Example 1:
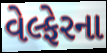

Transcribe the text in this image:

વેલ્ફેરના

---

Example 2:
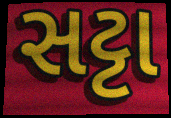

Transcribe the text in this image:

સટ્ટા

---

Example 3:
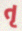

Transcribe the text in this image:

તૃ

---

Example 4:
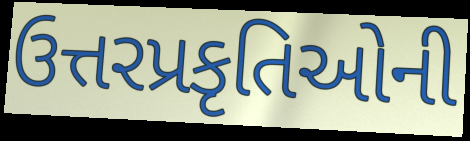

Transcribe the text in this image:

ઉત્તરપ્રકૃતિઓની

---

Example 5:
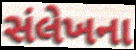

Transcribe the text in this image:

સંલેખના